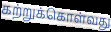
கற்றுக்கொள்வது